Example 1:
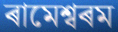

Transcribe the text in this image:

ৰামেশ্বৰম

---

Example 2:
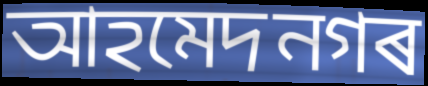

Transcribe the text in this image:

আহমেদনগৰ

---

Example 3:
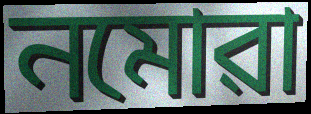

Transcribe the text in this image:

নমোৱা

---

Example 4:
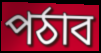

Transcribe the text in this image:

পঠাব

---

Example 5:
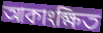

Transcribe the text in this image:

আকাংক্ষিত